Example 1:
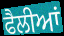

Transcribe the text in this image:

ਫੈਲੀਆਂ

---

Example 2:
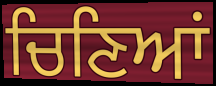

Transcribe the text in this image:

ਚਿਣਿਆਂ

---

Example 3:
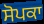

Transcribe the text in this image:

ਸੋਪਕਾ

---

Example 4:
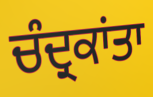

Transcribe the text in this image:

ਚੰਦ੍ਰਕਾਂਤਾ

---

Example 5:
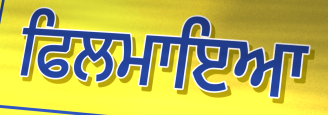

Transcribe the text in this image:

ਫਿਲਮਾਇਆ